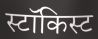
स्टॉकिस्ट